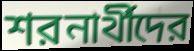
শরনার্থীদের